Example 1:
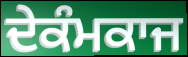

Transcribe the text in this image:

ਦੇਕੰਮਕਾਜ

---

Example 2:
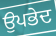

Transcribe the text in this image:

ਉਪਭੇਦ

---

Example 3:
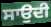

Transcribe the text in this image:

ਸਾਉਦੀ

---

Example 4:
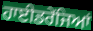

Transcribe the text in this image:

ਹਾਈਡਰੇਂਜਿਆਂ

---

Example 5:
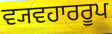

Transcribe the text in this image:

ਵ੍ਯਵਹਾਰਰੂਪ